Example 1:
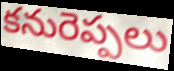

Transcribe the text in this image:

కనురెప్పలు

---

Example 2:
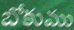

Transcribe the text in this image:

బోకుము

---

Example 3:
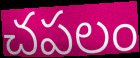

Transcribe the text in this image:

చపలం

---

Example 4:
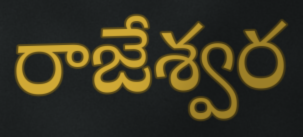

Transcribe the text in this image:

రాజేశ్వర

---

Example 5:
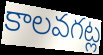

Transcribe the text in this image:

కాలవగట్ల